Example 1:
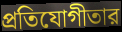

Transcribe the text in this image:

প্রতিযোগীতার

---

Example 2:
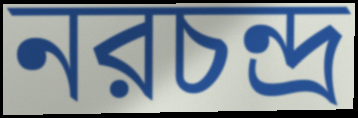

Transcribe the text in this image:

নরচন্দ্র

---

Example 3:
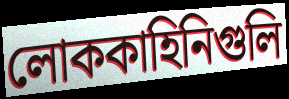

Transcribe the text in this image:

লোককাহিনিগুলি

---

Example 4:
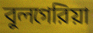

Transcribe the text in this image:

বুলগেরিয়া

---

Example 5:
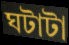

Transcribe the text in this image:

ঘটাটা